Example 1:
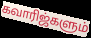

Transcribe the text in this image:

கவாரிஜ்களும்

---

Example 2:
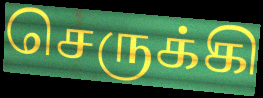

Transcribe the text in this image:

செருக்கி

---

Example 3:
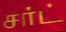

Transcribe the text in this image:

சர்ட்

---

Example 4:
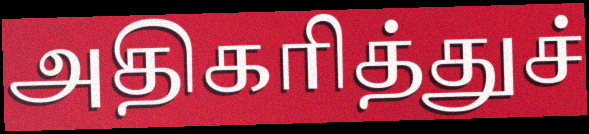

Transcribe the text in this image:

அதிகரித்துச்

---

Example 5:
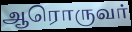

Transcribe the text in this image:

ஆரொருவர்